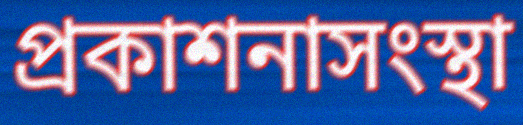
প্রকাশনাসংস্থা